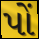
પોં